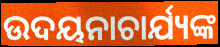
ଉଦୟନାଚାର୍ଯ୍ୟଙ୍କ